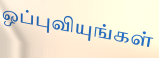
ஒப்புவியுங்கள்